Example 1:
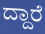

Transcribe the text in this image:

ದ್ದಾರೆ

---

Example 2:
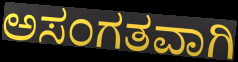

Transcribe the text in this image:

ಅಸಂಗತವಾಗಿ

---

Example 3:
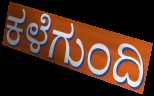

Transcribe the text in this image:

ಕಳೆಗುಂದಿ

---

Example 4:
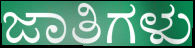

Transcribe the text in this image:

ಜಾತಿಗಳು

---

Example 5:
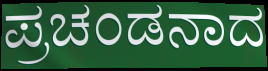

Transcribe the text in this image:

ಪ್ರಚಂಡನಾದ